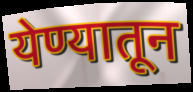
येण्यातून